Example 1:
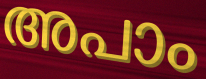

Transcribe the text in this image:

അപാം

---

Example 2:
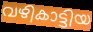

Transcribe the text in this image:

വഴികാട്ടിയ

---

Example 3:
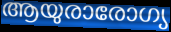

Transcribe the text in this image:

ആയുരാരോഗ്യ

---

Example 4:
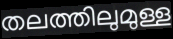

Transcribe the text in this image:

തലത്തിലുമുള്ള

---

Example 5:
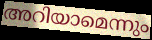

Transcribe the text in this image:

അറിയാമെന്നും